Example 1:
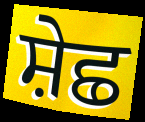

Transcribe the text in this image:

ਸ਼ੇਛ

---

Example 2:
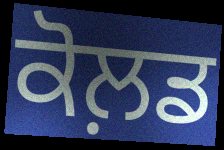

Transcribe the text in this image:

ਕੋਲ਼ਡ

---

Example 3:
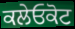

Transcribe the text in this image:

ਕਲੇਓਕੋਟ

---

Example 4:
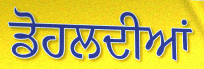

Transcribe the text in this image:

ਡੋਹਲਦੀਆਂ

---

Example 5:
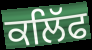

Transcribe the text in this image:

ਕਲਿੱਫ